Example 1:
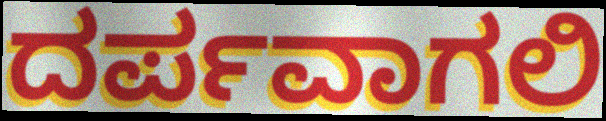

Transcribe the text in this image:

ದರ್ಪವಾಗಲಿ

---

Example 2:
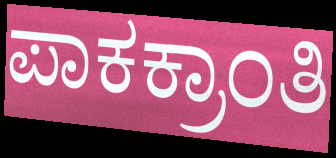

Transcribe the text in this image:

ಪಾಕಕ್ರಾಂತಿ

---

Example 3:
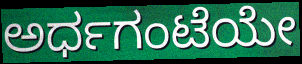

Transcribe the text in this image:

ಅರ್ಧಗಂಟೆಯೇ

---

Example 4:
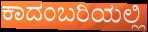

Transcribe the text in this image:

ಕಾದಂಬರಿಯಲ್ಲಿ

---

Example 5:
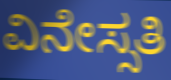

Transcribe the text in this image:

ವಿನೇಸ್ಸತಿ